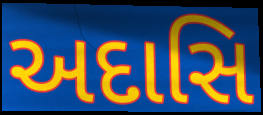
અદાસિ